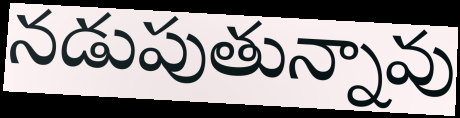
నడుపుతున్నావు